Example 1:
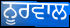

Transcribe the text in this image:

ਨੂਰਵਾਲ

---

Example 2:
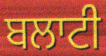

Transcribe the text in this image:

ਬਲਾਟੀ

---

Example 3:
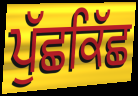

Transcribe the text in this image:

ਪੁੱਛਕਿੱਛ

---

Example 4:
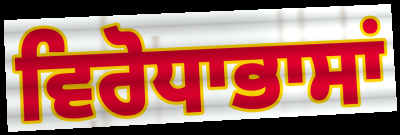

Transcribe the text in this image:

ਵਿਰੋਧਾਭਾਸਾਂ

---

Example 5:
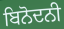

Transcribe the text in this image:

ਬਿਨੋਦਨੀ